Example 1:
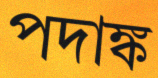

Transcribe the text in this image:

পদাঙ্ক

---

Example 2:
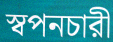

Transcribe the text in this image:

স্বপনচারী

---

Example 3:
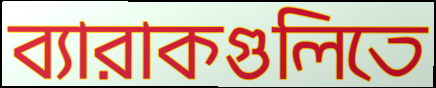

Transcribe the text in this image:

ব্যারাকগুলিতে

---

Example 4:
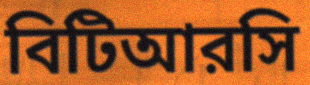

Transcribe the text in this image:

বিটিআরসি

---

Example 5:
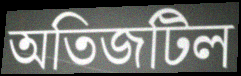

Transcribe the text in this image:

অতিজটিল